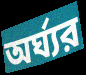
অর্ঘ্যর